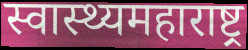
स्वास्थ्यमहाराष्ट्र